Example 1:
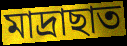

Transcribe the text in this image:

মাদ্ৰাছাত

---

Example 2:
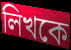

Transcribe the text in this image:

লিখকে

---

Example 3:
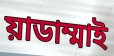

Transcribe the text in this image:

য়াডাম্মাই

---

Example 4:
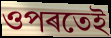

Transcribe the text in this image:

ওপৰতেই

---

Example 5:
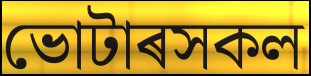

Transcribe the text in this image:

ভোটাৰসকল